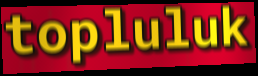
topluluk